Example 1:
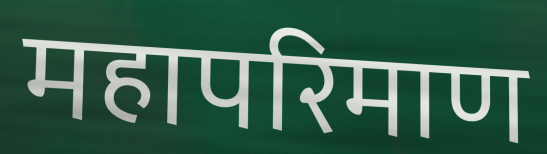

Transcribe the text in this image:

महापरिमाण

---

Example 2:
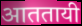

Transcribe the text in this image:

आततायी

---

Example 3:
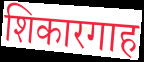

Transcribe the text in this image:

शिकारगाह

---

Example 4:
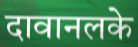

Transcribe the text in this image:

दावानलके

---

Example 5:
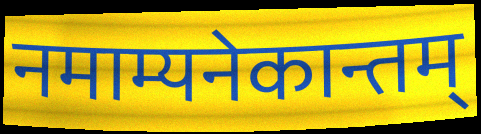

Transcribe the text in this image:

नमाम्यनेकान्तम्